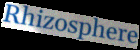
Rhizosphere